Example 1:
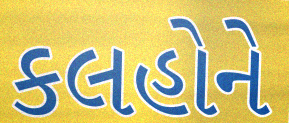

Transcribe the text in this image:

કલહોને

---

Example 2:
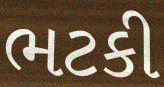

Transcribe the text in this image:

ભટકી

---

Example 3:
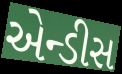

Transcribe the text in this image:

એન્ડીસ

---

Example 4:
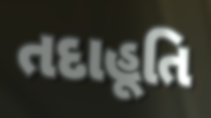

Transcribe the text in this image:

તદાહૂતિ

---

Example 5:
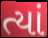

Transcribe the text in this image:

ત્‍યાં